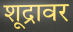
शूद्रावर